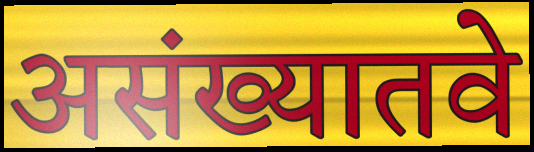
असंख्यातवे